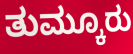
ತುಮ್ಕೂರು